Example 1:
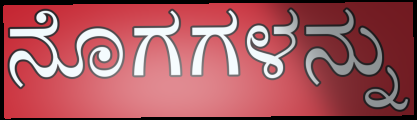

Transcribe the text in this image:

ನೊಗಗಳನ್ನು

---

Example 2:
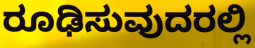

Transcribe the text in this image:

ರೂಢಿಸುವುದರಲ್ಲಿ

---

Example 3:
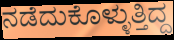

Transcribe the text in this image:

ನಡೆದುಕೊಳ್ಳುತ್ತಿದ್ದ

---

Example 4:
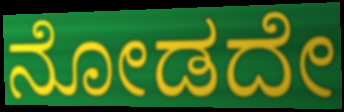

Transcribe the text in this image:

ನೋಡದೇ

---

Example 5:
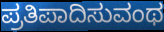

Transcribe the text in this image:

ಪ್ರತಿಪಾದಿಸುವಂಥ